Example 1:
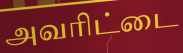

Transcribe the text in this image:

அவரிட்டை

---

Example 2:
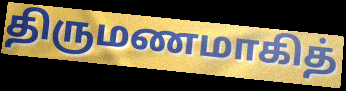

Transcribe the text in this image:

திருமணமாகித்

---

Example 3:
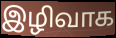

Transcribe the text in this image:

இழிவாக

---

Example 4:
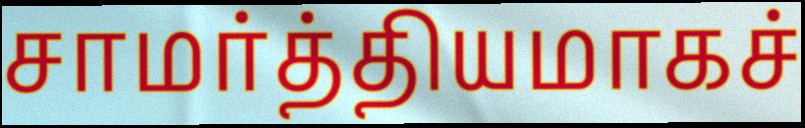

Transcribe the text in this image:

சாமர்த்தியமாகச்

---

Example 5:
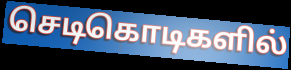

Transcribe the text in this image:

செடிகொடிகளில்